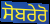
ਸੋਬਰੇਰੋ